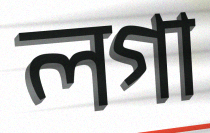
লগা